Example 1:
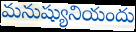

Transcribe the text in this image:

మనుష్యునియందు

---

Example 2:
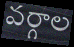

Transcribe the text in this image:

వర్గాల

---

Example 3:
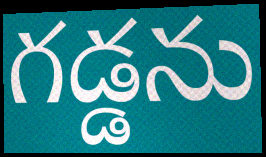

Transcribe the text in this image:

గడ్డను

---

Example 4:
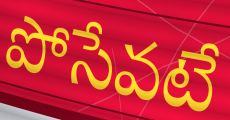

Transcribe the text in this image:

పోసేవటే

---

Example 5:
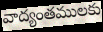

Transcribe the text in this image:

వాద్యంతములకు